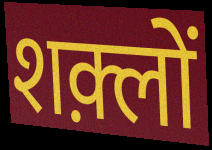
शक़्लों